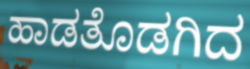
ಹಾಡತೊಡಗಿದ